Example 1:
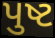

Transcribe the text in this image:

પુષ્ટ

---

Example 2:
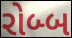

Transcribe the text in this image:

રોબ્બ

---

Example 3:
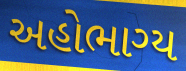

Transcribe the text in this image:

અહોભાગ્ય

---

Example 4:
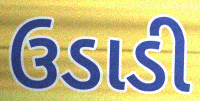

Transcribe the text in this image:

ઉડાડી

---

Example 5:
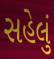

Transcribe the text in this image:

સહેલું